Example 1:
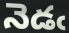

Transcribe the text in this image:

నెడఁ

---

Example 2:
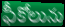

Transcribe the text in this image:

ఫీకోలును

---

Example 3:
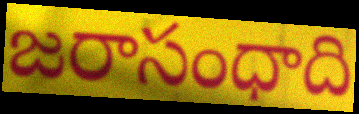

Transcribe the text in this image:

జరాసంధాది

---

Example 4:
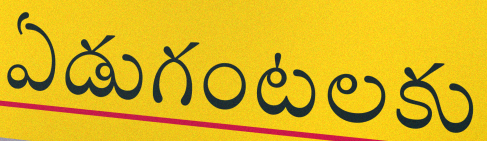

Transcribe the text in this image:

ఏడుగంటలకు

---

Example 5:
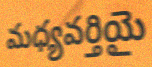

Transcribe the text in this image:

మధ్యవర్తియై